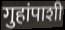
गुहांपाशी